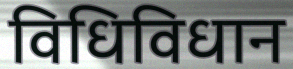
विधिविधान